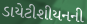
ડાયેટીશીયનની